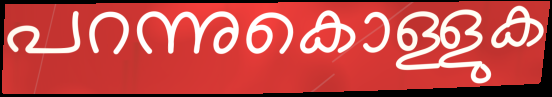
പറന്നുകൊള്ളുക